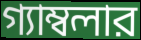
গ্যাম্বলার